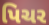
પિચર